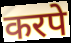
करपे